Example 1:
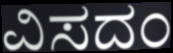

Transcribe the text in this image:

ವಿಸದಂ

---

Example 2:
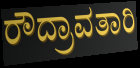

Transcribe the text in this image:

ರೌದ್ರಾವತಾರಿ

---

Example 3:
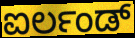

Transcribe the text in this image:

ಐರ್ಲಂಡ್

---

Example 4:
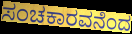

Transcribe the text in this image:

ಸಂಚಕಾರವನೆಂದ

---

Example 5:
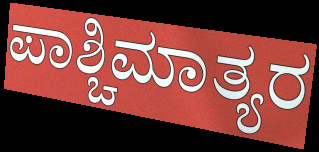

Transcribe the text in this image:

ಪಾಶ್ಚಿಮಾತ್ಯರ